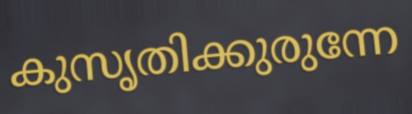
കുസൃതിക്കുരുന്നേ